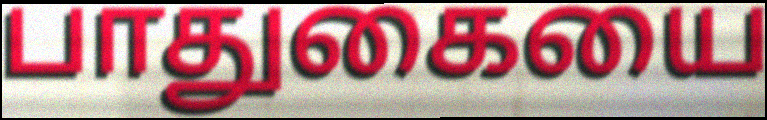
பாதுகையை